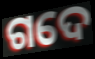
ଗଦେ